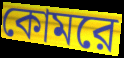
কোমরে